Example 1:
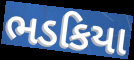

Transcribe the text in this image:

ભડકિયા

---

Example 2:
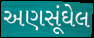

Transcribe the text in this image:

અણસૂંઘેલ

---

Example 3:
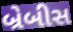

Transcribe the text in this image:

બ્રેબીસ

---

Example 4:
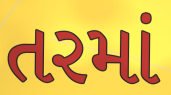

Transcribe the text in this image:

તરમાં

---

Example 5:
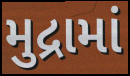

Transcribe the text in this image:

મુદ્રામાં